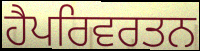
ਹੈਪਰਿਵਰਤਨ